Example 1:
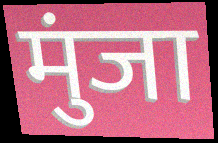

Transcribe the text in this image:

मुंजा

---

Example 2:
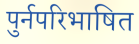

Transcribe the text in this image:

पुर्नपरिभाषित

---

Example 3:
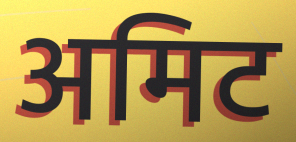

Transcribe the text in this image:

अमिट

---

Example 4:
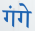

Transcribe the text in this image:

गंगे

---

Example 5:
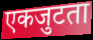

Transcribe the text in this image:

एकजुटता